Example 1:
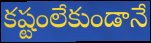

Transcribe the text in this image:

కష్టంలేకుండానే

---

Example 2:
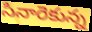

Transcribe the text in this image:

సినారెకున్న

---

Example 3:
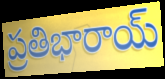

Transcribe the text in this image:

ప్రతిభారాయ్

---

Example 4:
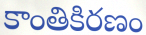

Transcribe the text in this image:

కాంతికిరణం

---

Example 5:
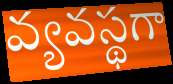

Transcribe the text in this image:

వ్యవస్థగా